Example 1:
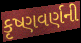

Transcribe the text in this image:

કૃષ્ણવર્ણની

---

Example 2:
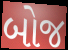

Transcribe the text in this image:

બોજ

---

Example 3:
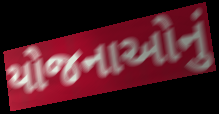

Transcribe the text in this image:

યોજનાઓનું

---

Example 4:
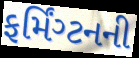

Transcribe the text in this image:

ફર્મિંગ્ટનની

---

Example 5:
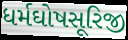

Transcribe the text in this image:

ધર્મઘોષસૂરિજી